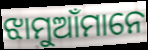
ଝାମୁଆଁମାନେ